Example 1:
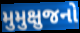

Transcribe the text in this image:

મુમુક્ષુજનો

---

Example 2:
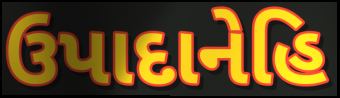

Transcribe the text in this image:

ઉપાદાનેહિ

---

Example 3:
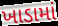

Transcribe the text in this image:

ખાડામાં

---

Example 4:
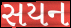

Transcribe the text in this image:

સયન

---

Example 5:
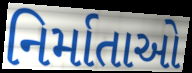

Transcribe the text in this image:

નિર્માતાઓ